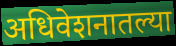
अधिवेशनातल्या